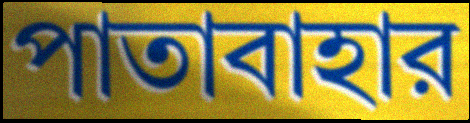
পাতাবাহার